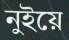
নুইয়ে